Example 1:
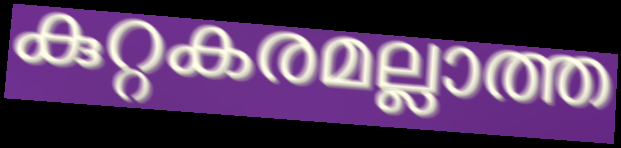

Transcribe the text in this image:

കുറ്റകരമല്ലാത്ത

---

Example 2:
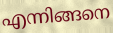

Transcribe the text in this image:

എന്നിങ്ങനെ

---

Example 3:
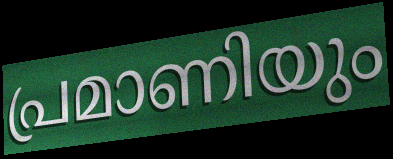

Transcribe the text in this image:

പ്രമാണിയും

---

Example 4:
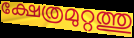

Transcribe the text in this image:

ക്ഷേത്രമുറ്റത്തു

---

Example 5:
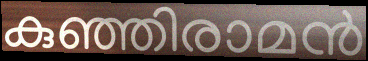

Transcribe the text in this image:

കുഞ്ഞിരാമൻ